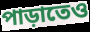
পাড়াতেও